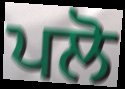
ਪਲੋ